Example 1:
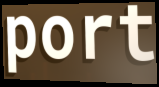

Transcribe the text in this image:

port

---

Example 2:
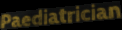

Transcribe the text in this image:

Paediatrician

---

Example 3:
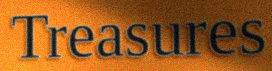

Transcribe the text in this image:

Treasures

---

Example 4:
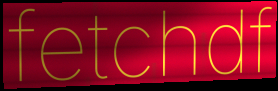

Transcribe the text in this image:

fetchdf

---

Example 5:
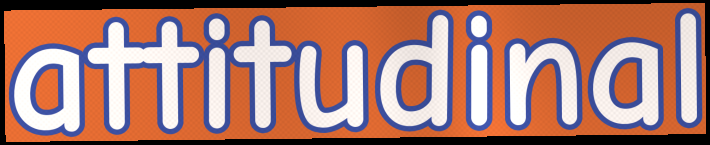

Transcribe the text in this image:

attitudinal